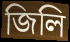
জিলি